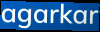
agarkar